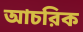
আচরিক